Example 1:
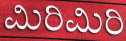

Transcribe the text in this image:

ಮಿರಿಮಿರಿ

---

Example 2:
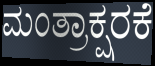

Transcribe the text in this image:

ಮಂತ್ರಾಕ್ಷರಕೆ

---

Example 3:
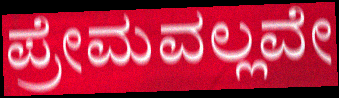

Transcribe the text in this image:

ಪ್ರೇಮವಲ್ಲವೇ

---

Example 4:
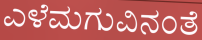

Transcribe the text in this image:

ಎಳೆಮಗುವಿನಂತೆ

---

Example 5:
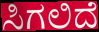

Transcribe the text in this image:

ಸಿಗಲಿದೆ